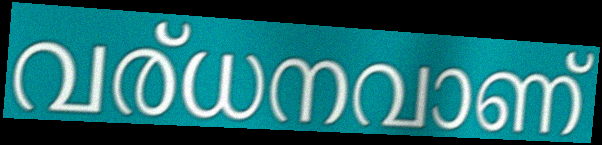
വര്ധനവാണ്